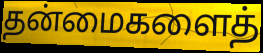
தன்மைகளைத்